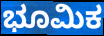
ಭೂಮಿಕ